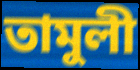
তামুলী